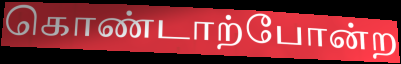
கொண்டாற்போன்ற